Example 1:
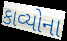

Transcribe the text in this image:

કાવ્યોના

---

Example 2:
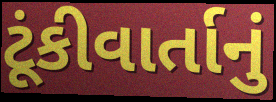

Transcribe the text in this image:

ટૂંકીવાર્તાનું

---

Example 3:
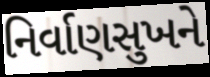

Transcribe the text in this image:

નિર્વાણસુખને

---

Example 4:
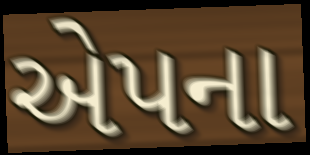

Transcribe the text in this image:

એપના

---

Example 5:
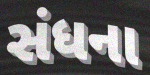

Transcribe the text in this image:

સંધના